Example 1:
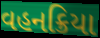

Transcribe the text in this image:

વહનક્રિયા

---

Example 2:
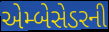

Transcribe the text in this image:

એમ્બેસેડરની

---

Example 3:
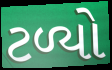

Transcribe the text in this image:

ટળ્યો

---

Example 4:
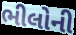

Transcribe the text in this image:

ભીલોની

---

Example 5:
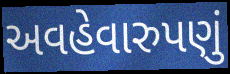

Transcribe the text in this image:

અવહેવારુપણું